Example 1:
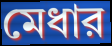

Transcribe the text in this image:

মেধার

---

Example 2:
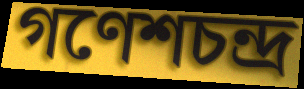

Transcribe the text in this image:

গণেশচন্দ্র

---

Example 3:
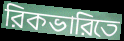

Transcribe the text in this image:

রিকভারিতে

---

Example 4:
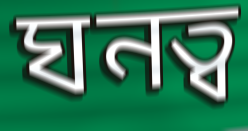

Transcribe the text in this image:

ঘনত্ব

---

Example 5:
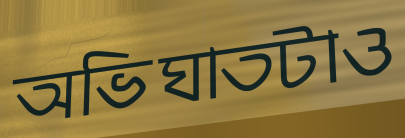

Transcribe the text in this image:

অভিঘাতটাও